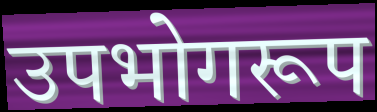
उपभोगरूप